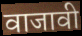
वाजावी